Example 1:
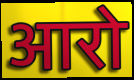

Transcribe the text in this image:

आरो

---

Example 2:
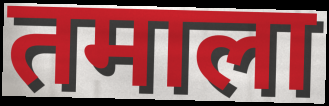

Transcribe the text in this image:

तमाला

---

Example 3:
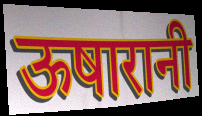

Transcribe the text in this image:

ऊषारानी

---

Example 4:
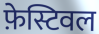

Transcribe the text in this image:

फ़ेस्टिवल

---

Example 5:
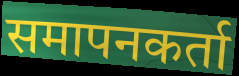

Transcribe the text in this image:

समापनकर्ता